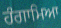
ਹੰਗਾਮਿਆ